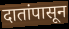
दातांपासून